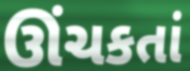
ઊંચકતાં